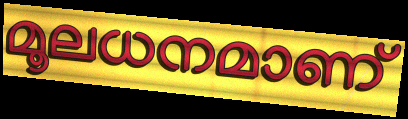
മൂലധനമാണ്